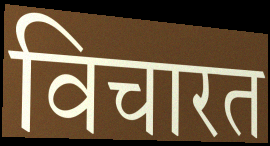
विचारत